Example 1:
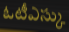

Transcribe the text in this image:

ఓటీఎస్కు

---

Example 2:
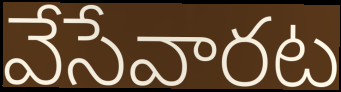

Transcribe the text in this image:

వేసేవారట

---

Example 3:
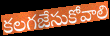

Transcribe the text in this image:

కలగజేసుకోవాలి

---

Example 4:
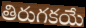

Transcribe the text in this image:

తిరుగకయే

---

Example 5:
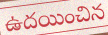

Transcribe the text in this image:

ఉదయించిన